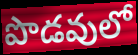
పొడవులో